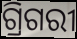
ଗ୍ରିଗରୀ